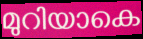
മുറിയാകെ